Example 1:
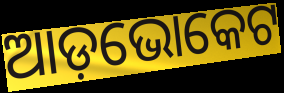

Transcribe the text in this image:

ଆଡ଼ଭୋକେଟ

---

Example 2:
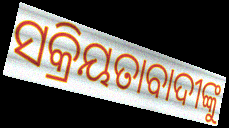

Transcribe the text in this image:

ସକ୍ରିୟତାବାଦୀଙ୍କୁ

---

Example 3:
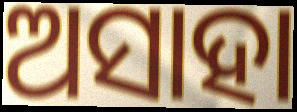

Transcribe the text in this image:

ଅସାହା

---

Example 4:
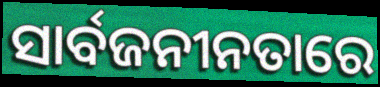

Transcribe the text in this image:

ସାର୍ବଜନୀନତାରେ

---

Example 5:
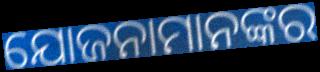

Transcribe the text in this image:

ଯୋଜନାମାନଙ୍କର